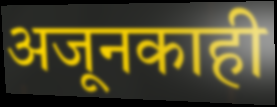
अजूनकाही